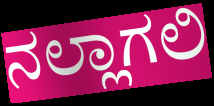
ನಲ್ಲಾಗಲಿ